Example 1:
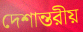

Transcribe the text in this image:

দেশান্তরীয়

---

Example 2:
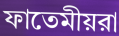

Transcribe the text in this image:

ফাতেমীয়রা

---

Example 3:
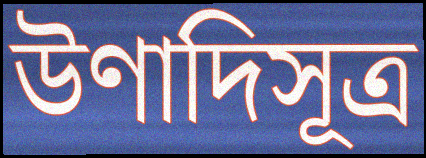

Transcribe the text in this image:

উণাদিসূত্র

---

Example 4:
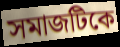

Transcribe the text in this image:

সমাজটিকে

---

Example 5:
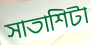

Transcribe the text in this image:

সাতাশিটা